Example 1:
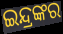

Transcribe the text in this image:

ଇନ୍ଦ୍ରଙ୍କର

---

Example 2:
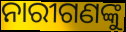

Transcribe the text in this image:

ନାରୀଗଣଙ୍କୁ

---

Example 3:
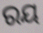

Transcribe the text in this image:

ରୟ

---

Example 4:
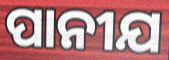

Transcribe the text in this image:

ପାନୀଯ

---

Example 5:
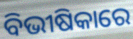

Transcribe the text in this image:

ବିଭୀଷିକାରେ